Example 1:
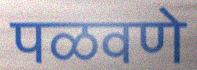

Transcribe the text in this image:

पळवणे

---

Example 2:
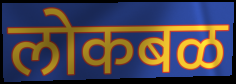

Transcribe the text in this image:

लोकबळ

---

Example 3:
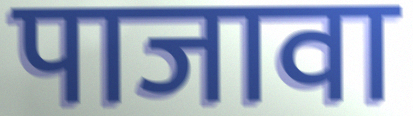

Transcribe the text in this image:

पाजावा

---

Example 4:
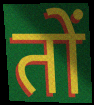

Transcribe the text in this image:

तों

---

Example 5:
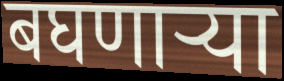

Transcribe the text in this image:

बघणाऱ्या